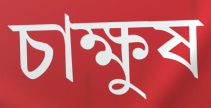
চাক্ষুষ